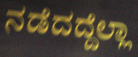
ನಡೆದದ್ದೆಲ್ಲಾ